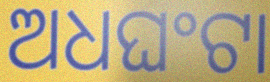
ଅଧଘଂଟା